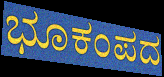
ಭೂಕಂಪದ